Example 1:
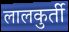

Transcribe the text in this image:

लालकुर्ती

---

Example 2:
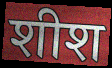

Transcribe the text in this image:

शीश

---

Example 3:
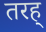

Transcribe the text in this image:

तरह्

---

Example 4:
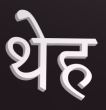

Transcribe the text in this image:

थेह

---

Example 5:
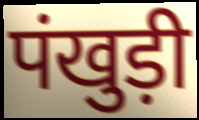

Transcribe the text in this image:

पंखुड़ी